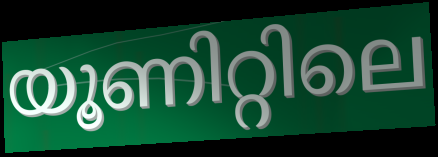
യൂണിറ്റിലെ